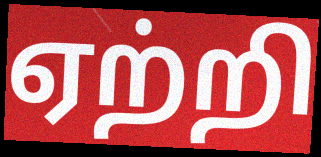
ஏற்றி